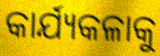
କାର୍ଯ୍ୟକଳାକୁ